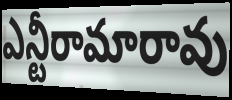
ఎన్టీరామారావు